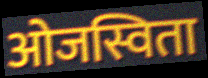
ओजस्विता